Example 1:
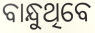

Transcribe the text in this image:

ବାନ୍ଧୁଥିବେ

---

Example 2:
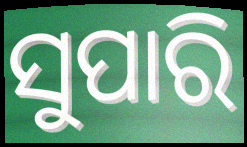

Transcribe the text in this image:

ସୁପାରି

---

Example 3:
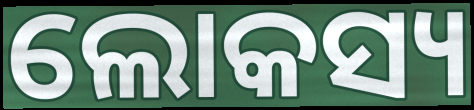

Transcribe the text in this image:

ଲୋକସ୍ୟ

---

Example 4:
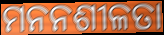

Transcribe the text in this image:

ମନନଶୀଳତା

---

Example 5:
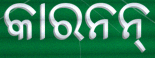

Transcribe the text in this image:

କାରନନ୍